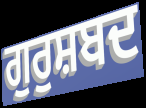
ਗੁਰੁਸ਼ਬਦ